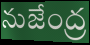
నుజేంద్ర